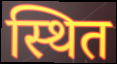
स्थित